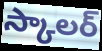
స్కాలర్